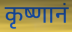
कृष्णानं